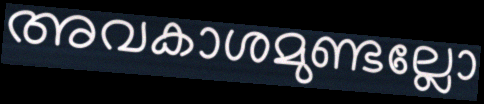
അവകാശമുണ്ടല്ലോ